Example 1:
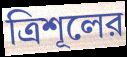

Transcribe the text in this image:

ত্রিশূলের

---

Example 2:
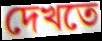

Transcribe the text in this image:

দেখতে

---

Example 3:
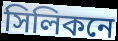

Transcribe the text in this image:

সিলিকনে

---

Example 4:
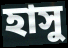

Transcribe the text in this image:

হাসু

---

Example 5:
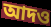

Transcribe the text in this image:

আদও